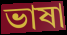
ভাষা